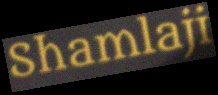
Shamlaji